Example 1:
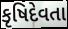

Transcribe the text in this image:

કૃષિદેવતા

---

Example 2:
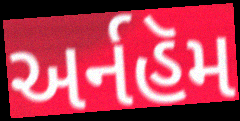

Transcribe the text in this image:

અર્નહૅમ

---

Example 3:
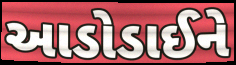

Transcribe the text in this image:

આડોડાઈને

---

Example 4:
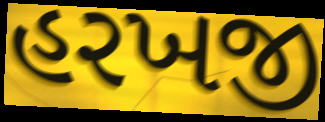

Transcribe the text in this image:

હરખજી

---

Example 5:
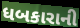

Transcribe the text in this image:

ધબકારાની